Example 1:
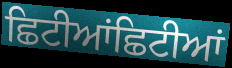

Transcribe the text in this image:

ਛਿਟੀਆਂਛਿਟੀਆਂ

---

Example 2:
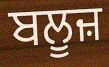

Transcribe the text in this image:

ਬਲੂਜ਼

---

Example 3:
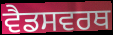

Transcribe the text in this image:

ਵੈਡਸਵਰਥ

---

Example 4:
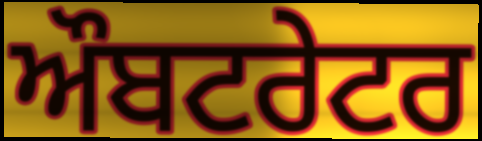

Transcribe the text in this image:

ਔਬਟਰੇਟਰ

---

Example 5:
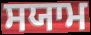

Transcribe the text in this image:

ਸਯਾਮ